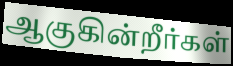
ஆகுகின்றீர்கள்